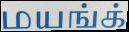
மயங்க்